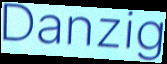
Danzig